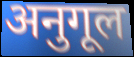
अनुगूल